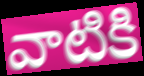
వాటికి